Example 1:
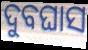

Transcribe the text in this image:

ଦୁବଘାସ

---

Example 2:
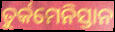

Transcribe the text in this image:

ତୁର୍କମେନିସ୍ତାନ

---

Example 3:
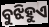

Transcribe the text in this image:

ବୁଝିହୁଏ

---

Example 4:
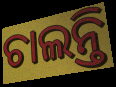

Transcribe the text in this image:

ଚାଲନ୍ତି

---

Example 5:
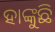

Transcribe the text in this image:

ହାଙ୍କୁଛି